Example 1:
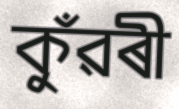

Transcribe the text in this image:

কুঁৱৰী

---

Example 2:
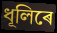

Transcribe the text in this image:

ধূলিৰে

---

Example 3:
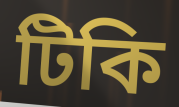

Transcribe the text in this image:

টিকি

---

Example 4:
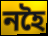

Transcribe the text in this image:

নহৈ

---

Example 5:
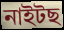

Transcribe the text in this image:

নাইটছ